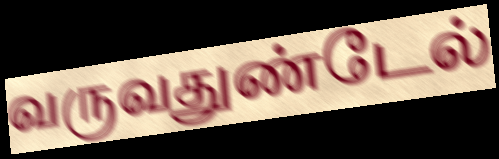
வருவதுண்டேல்